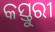
କସ୍ତୁରୀ